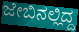
ಜೇಬಿನಲ್ಲಿದ್ದ